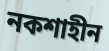
নকশাহীন